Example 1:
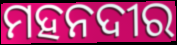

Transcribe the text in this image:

ମହନଦୀର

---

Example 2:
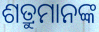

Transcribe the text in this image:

ଶତ୍ରୁମାନଙ୍କ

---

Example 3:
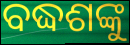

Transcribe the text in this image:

ବଦ୍ଧଶଙ୍କୁ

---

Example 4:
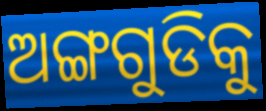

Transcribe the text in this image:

ଅଙ୍ଗଗୁଡିକୁ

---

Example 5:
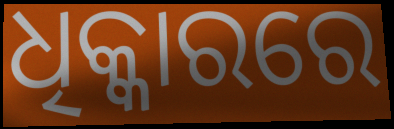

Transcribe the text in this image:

ଧିକ୍କାରରେ